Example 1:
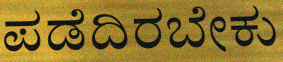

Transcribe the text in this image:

ಪಡೆದಿರಬೇಕು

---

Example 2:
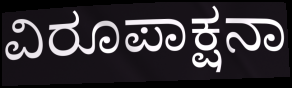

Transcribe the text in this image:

ವಿರೂಪಾಕ್ಷನಾ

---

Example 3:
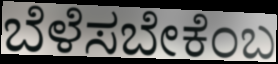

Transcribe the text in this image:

ಬೆಳೆಸಬೇಕೆಂಬ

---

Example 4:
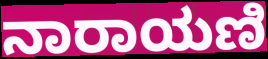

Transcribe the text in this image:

ನಾರಾಯಣಿ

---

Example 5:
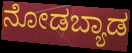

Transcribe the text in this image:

ನೋಡಬ್ಯಾಡ